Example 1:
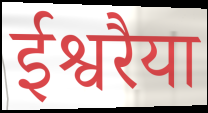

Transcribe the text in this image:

ईश्वरैया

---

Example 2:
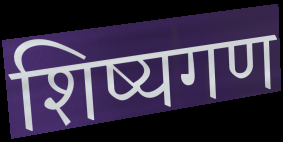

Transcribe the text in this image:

शिष्यगण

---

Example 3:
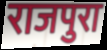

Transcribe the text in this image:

राजपुरा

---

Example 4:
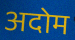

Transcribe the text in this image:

अदोम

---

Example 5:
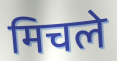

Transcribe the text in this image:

मिचले